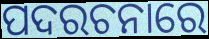
ପଦରଚନାରେ